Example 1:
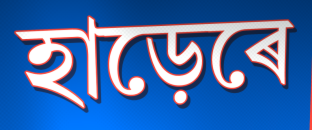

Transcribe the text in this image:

হাড়েৰে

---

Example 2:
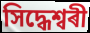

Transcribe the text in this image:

সিদ্ধেশ্বৰী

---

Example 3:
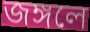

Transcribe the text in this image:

জঙ্গলে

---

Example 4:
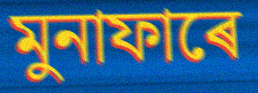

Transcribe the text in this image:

মুনাফাৰে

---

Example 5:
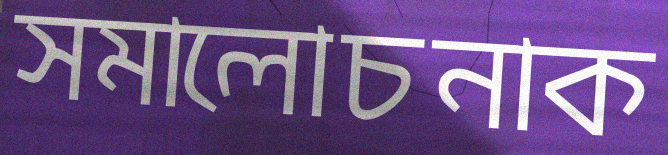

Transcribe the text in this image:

সমালোচনাক